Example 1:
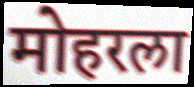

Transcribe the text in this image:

मोहरला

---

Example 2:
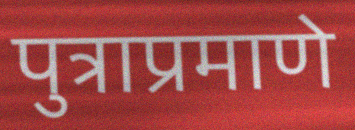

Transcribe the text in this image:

पुत्राप्रमाणे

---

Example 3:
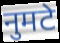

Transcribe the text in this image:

नुमटे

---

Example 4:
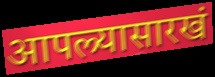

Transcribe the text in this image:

आपल्यासारखं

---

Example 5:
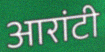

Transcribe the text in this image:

आरांटी